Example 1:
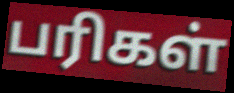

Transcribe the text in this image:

பரிகள்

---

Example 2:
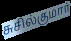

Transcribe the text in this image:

சுசில்குமார்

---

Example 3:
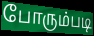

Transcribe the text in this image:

போரும்படி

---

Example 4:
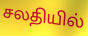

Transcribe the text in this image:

சலதியில்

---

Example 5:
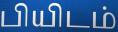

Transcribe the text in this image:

பியிடம்